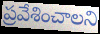
ప్రవేశించాలని